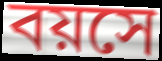
বয়সে